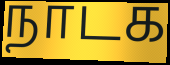
நாடக